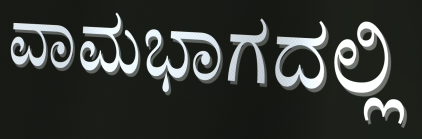
ವಾಮಭಾಗದಲ್ಲಿ